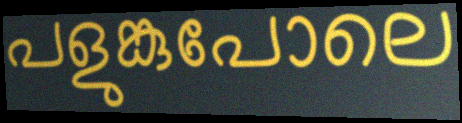
പളുങ്കുപോലെ